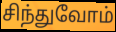
சிந்துவோம்